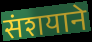
संशयाने